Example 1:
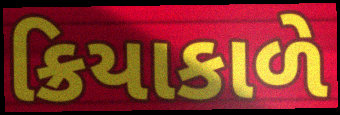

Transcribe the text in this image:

ક્રિયાકાળે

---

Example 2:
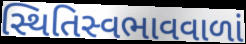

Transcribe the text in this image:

સ્થિતિસ્વભાવવાળાં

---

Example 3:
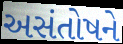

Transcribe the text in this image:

અસંતોષને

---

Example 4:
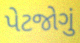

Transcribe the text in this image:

પેટજોગું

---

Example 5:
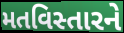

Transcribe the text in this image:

મતવિસ્તારને